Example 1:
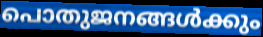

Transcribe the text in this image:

പൊതുജനങ്ങൾക്കും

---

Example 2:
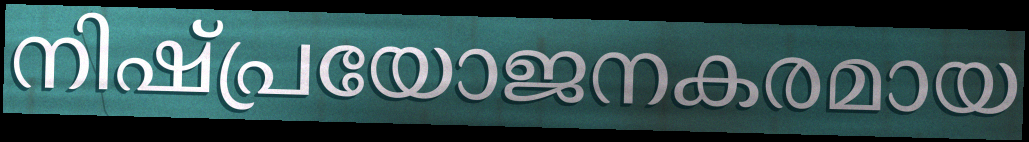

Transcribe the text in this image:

നിഷ്പ്രയോജനകരമായ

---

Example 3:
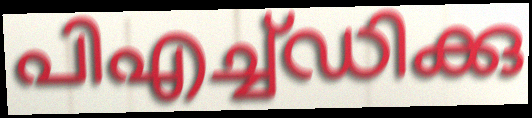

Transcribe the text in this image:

പിഎച്ച്ഡിക്കു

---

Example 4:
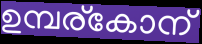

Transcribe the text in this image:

ഉമ്പര്കോന്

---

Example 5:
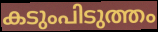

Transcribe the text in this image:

കടുംപിടുത്തം